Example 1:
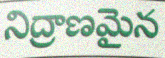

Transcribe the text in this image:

నిద్రాణమైన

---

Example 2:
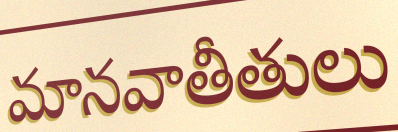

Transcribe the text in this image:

మానవాతీతులు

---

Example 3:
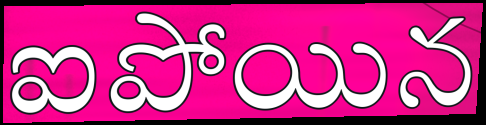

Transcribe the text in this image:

ఐపోయిన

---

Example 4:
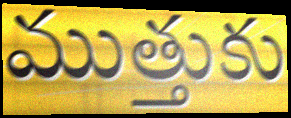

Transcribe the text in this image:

ముత్తుకు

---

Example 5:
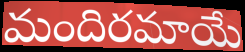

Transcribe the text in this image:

మందిరమాయే